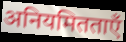
अनियमितताएँ